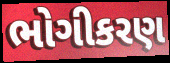
ભોગીકરણ